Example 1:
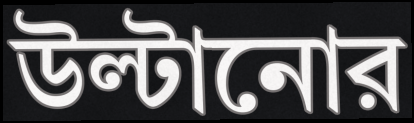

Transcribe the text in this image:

উল্টানোর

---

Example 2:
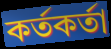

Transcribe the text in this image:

কর্তকর্তা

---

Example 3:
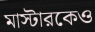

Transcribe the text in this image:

মাস্টারকেও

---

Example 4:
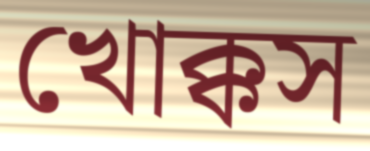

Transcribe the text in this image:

খোক্কস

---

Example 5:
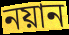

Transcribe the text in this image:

নয়ান